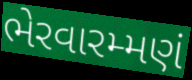
ભેરવારમ્મણં